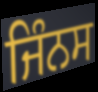
ਜਿੰਨਸ